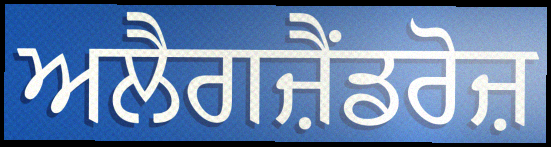
ਅਲੈਗਜ਼ੈਂਡਰੋਜ਼